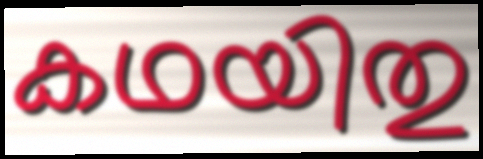
കഥയിതു